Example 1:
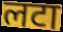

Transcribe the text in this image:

लटा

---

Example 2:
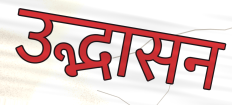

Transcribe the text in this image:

उद्भासन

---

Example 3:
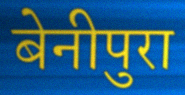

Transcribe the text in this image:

बेनीपुरा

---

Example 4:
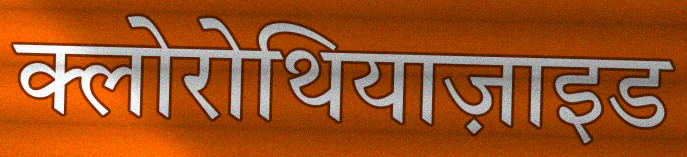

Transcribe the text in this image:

क्लोरोथियाज़ाइड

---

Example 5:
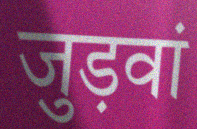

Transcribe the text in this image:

जुड़वां